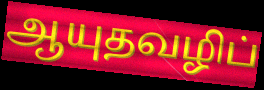
ஆயுதவழிப்